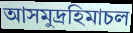
আসমুদ্রহিমাচল